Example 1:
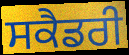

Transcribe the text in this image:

ਸਕੈਡਰੀ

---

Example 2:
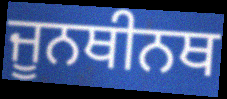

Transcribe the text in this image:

ਜੂਨਥੀਨਥ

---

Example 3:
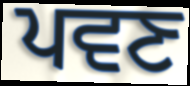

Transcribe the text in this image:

ਪਵਣ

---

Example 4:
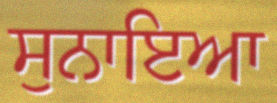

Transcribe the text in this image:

ਸੁਨਾਇਆ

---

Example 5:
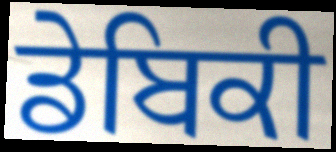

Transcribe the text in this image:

ਡੇਬਿਕੀ